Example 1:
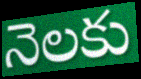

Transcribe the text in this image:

నెలకు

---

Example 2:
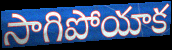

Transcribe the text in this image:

సాగిపోయాక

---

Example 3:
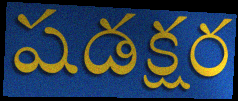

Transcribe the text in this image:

షడక్షర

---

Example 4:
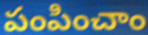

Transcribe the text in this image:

పంపించాం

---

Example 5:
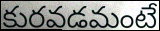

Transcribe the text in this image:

కురవడమంటే